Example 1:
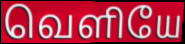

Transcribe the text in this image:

வெளியே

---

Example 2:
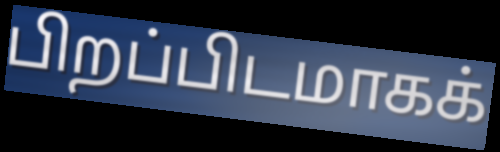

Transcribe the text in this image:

பிறப்பிடமாகக்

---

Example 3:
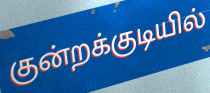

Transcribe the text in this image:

குன்றக்குடியில்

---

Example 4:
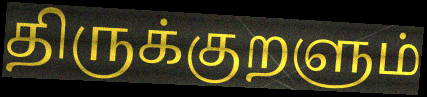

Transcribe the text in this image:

திருக்குறளும்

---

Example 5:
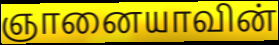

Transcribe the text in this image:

ஞானையாவின்